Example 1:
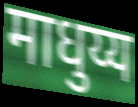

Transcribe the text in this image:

माधुय्य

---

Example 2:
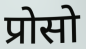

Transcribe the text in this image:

प्रोसो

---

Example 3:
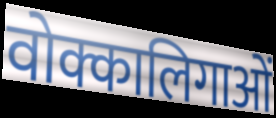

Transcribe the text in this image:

वोक्कालिगाओं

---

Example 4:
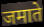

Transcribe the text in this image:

जमाते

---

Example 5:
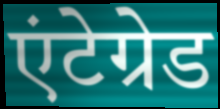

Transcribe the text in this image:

एंटेग्रेड